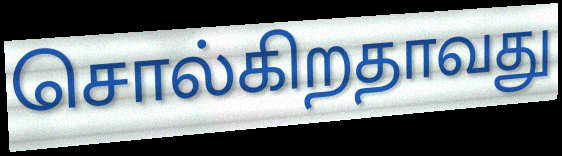
சொல்கிறதாவது